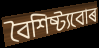
বৈশিষ্ট্যবোৰ